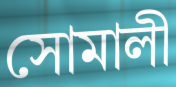
সোমালী